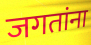
जगतांना